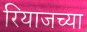
रियाजच्या